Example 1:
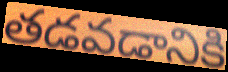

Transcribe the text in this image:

తడవడానికి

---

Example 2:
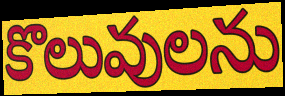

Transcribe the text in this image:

కొలువులను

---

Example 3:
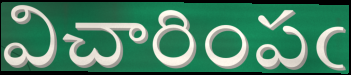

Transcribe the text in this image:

విచారింపఁ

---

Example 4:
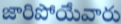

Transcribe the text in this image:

జారిపోయేవారు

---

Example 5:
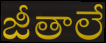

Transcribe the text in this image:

జీతాలే